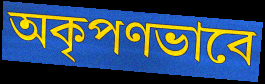
অকৃপণভাবে